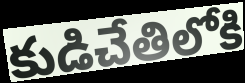
కుడిచేతిలోకి